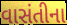
વાસંતીના